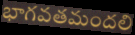
భాగవతమందలి